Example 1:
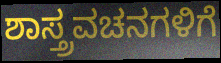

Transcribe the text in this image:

ಶಾಸ್ತ್ರವಚನಗಳಿಗೆ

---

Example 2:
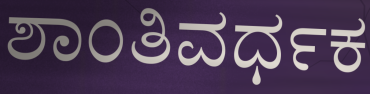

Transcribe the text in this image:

ಶಾಂತಿವರ್ಧಕ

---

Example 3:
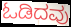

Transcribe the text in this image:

ಓಡಿದವು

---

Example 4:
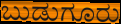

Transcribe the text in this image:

ಬುಡುಗೂರು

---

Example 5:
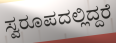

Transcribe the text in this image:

ಸ್ವರೂಪದಲ್ಲಿದ್ದರೆ